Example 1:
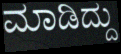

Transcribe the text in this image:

ಮಾಡಿದ್ದು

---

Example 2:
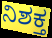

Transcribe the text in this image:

ನಿಶಕ್ತ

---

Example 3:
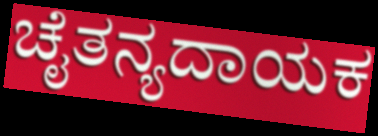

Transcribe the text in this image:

ಚೈತನ್ಯದಾಯಕ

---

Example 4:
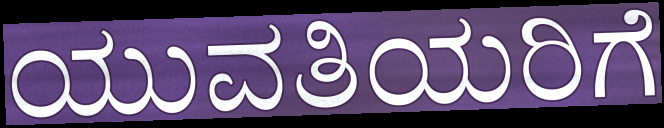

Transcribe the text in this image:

ಯುವತಿಯರಿಗೆ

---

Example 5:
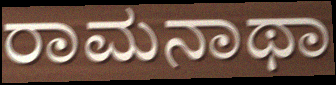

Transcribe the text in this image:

ರಾಮನಾಥಾ